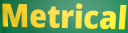
Metrical